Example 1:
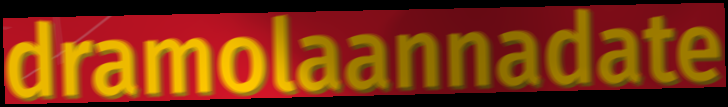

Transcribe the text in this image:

dramolaannadate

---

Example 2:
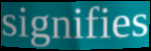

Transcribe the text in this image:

signifies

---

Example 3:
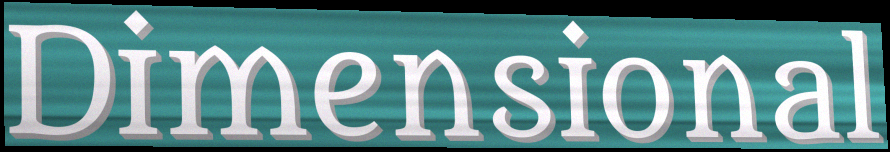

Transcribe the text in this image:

Dimensional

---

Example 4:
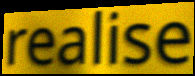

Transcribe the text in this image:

realise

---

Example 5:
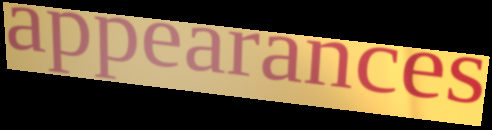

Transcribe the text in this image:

appearances